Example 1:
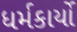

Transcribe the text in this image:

ધર્મકાર્યો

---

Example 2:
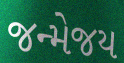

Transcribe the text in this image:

જન્મેજય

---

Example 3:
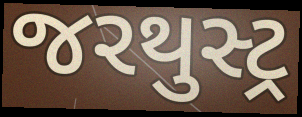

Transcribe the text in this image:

જરથુસ્ટ્ર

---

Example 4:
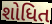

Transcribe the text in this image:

શોધિત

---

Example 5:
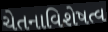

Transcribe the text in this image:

ચેતનાવિશેષત્વ